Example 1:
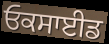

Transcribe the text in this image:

ਓਕਸਾਈਡ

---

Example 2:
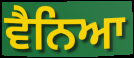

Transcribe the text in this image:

ਵੈਨਿਆ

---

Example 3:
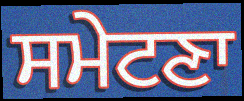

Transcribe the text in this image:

ਸਮੇਟਣਾ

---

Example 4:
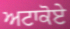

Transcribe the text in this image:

ਅਟਾਕੋਏ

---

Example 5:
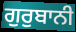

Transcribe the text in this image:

ਗੁਰੁਬਾਨੀ